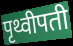
पृथ्वीपती